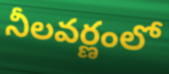
నీలవర్ణంలో